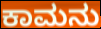
ಕಾಮನು